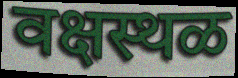
वक्षस्थळ